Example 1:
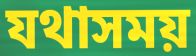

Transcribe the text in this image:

যথাসময়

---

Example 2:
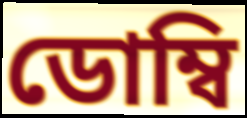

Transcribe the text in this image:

ডোম্বি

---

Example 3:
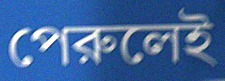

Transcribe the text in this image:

পেরুলেই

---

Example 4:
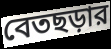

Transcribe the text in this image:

বেতছড়ার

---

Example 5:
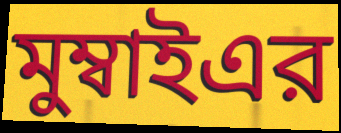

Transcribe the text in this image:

মুম্বাইএর